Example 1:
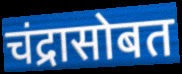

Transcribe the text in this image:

चंद्रासोबत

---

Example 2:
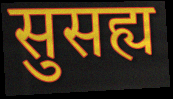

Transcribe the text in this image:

सुसह्य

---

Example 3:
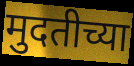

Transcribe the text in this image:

मुदतीच्या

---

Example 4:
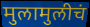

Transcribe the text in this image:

मुलामुलीचं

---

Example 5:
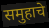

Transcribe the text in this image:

समुहाचे